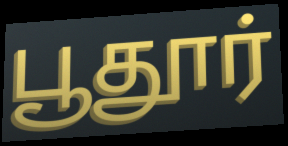
பூதூர்